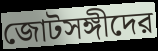
জোটসঙ্গীদের